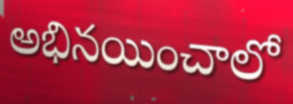
అభినయించాలో